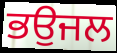
ਭਉਜਲ